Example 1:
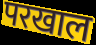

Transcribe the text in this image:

परखाल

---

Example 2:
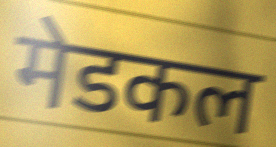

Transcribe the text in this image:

मेडकल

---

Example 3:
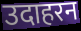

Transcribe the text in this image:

उदाहरन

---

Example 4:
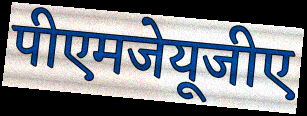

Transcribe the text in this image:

पीएमजेयूजीए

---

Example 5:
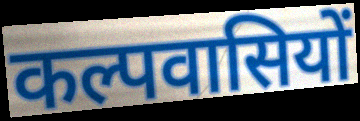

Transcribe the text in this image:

कल्पवासियों